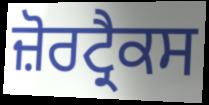
ਜ਼ੋਰਟ੍ਰੈਕਸ